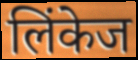
लिंकेज